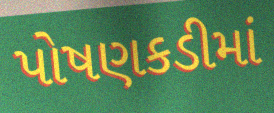
પોષણકડીમાં